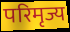
परिमृज्य